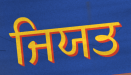
ਜਿਯਤ